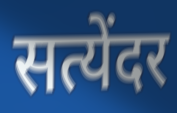
सत्येंदर